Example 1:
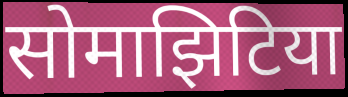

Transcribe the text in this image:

सोमाझिटिया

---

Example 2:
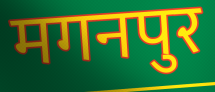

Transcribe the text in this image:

मगनपुर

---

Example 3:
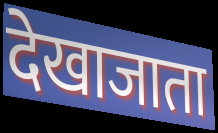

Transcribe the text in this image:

देखाजाता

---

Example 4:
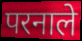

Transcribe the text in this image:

परनाले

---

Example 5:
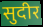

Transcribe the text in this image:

सुदीर